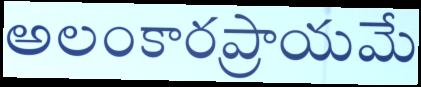
అలంకారప్రాయమే